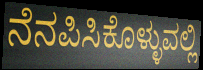
ನೆನಪಿಸಿಕೊಳ್ಳುವಲ್ಲಿ